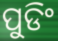
ପୁଡିଂ